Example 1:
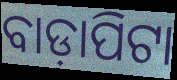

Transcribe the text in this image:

ବାଡ଼ାପିଟା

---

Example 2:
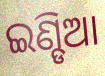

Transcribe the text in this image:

ଇଣ୍ଡିଆ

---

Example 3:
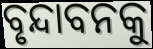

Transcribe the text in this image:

ବୃନ୍ଦାବନକୁ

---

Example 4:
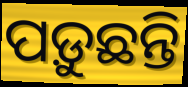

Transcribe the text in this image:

ପଡ଼ୁଛନ୍ତି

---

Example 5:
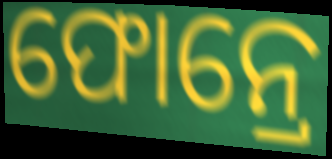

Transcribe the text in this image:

ଫୋନ୍ରେ